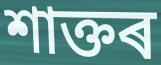
শাক্তৰ